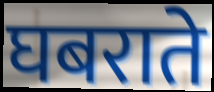
घबराते